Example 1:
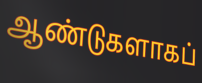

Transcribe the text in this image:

ஆண்டுகளாகப்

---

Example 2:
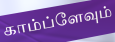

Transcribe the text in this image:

காம்ப்ளேவும்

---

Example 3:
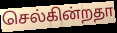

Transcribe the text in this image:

செல்கின்றதா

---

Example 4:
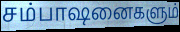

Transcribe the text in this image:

சம்பாஷனைகளும்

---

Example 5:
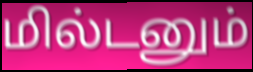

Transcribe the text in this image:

மில்டனும்